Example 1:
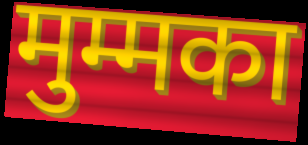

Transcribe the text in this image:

मुम्मका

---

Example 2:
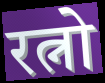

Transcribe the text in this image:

रत्नो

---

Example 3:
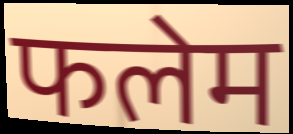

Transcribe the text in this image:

फलेम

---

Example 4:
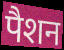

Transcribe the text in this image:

पैशन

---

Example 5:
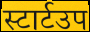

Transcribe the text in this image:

स्टार्टउप